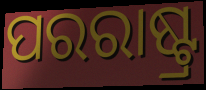
ପରରାଷ୍ଟ୍ର